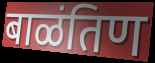
बाळंतिण